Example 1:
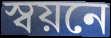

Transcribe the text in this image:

স্বয়নে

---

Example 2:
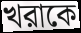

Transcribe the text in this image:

খরাকে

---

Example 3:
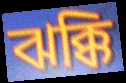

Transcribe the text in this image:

ঝক্কি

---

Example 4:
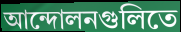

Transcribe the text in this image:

আন্দোলনগুলিতে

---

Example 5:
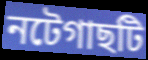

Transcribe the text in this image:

নটেগাছটি